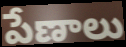
పేణాలు